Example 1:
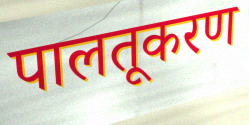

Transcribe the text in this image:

पालतूकरण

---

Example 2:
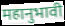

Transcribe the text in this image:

महानुभावी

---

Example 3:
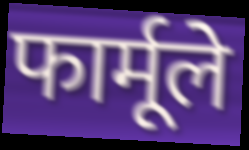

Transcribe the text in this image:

फार्मूले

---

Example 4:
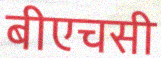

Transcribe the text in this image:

बीएचसी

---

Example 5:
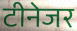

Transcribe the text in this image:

टीनेजर